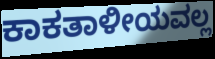
ಕಾಕತಾಳೀಯವಲ್ಲ